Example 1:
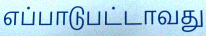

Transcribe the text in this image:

எப்பாடுபட்டாவது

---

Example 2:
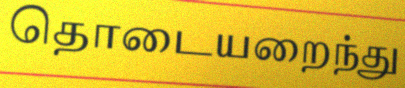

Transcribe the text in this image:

தொடையறைந்து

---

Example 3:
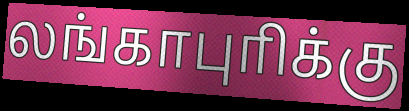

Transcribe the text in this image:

லங்காபுரிக்கு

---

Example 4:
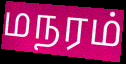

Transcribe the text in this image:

மநரம்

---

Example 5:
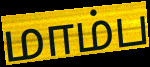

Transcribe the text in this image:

மாம்ப